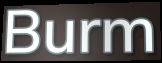
Burm